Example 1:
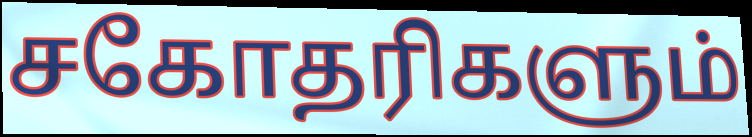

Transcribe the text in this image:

சகோதரிகளும்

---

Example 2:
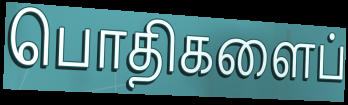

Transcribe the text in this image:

பொதிகளைப்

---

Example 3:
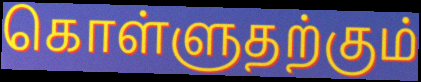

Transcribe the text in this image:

கொள்ளுதற்கும்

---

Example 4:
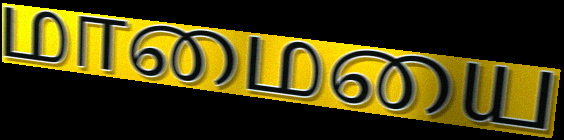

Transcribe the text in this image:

மாமையை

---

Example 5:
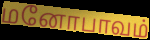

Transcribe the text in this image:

மனோபாவம்